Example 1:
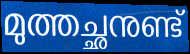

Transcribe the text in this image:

മുത്തച്ഛനുണ്ട്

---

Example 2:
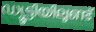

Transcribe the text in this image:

ഡ്യൂട്ടിയിലുണ്ട്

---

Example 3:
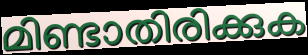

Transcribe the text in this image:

മിണ്ടാതിരിക്കുക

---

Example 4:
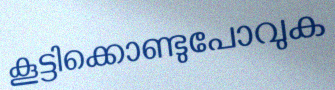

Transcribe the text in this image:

കൂട്ടിക്കൊണ്ടുപോവുക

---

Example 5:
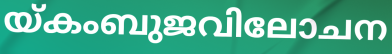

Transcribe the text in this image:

യ്കംബുജവിലോചന